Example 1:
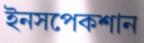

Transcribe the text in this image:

ইনসপেকশান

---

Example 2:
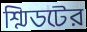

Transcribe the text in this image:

শ্মিডটের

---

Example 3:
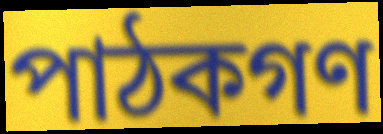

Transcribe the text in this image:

পাঠকগণ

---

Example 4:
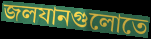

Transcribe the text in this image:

জলযানগুলোতে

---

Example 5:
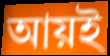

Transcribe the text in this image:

আয়ই